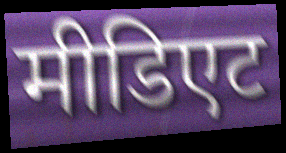
मीडिएट